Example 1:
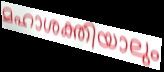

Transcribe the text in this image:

മഹാശക്തിയാലും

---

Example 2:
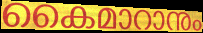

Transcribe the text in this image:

കൈമാറാനും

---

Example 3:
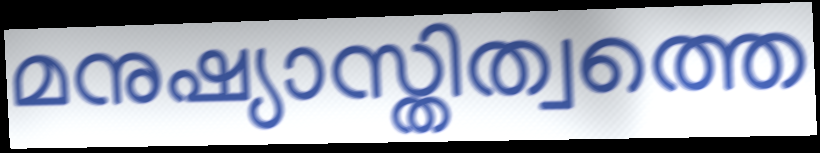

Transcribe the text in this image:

മനുഷ്യാസ്തിത്വത്തെ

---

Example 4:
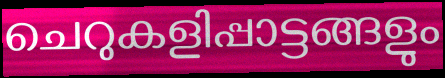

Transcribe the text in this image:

ചെറുകളിപ്പാട്ടങ്ങളും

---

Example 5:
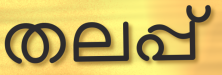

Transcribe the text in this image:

തലപ്പ്